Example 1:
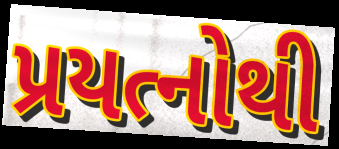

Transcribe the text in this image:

પ્રયત્નોથી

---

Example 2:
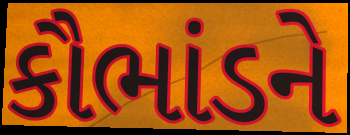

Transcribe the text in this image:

કૌભાંડને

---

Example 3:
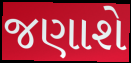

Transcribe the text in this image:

જણાશે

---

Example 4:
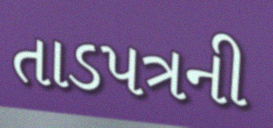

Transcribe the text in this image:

તાડપત્રની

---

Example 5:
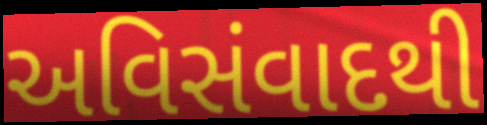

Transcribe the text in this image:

અવિસંવાદથી